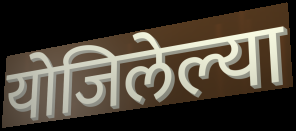
योजिलेल्या